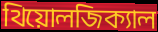
থিয়োলজিক্যাল